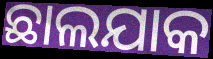
ଛାଲଯାକ